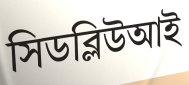
সিডব্লিউআই